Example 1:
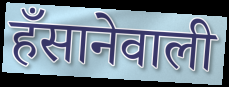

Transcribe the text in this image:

हँसानेवाली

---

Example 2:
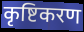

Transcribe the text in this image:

कृष्टिकरण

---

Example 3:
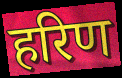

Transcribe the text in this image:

हरिण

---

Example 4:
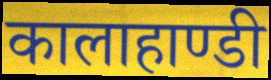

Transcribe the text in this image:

कालाहाण्डी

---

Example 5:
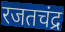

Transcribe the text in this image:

रजतचंद्र